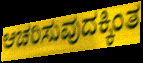
ಆಚರಿಸುವುದಕ್ಕಿಂತ